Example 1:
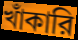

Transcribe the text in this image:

খাঁকারি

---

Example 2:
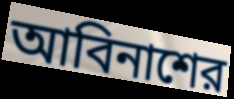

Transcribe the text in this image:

আবিনাশের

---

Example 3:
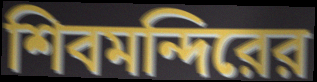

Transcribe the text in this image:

শিবমন্দিরের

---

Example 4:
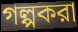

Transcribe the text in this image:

গল্পকরা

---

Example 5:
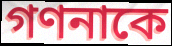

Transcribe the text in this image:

গণনাকে